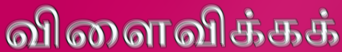
விளைவிக்கக்